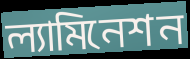
ল্যামিনেশন